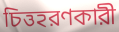
চিত্তহরণকারী